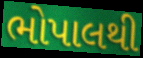
ભોપાલથી